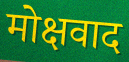
मोक्षवाद